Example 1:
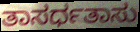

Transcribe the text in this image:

ತಾಸರ್ಧತಾಸು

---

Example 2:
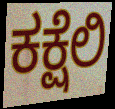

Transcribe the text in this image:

ಕಕ್ಷೆಲಿ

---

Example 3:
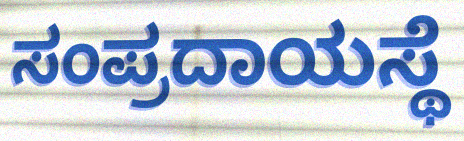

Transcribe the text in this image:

ಸಂಪ್ರದಾಯಸ್ಥೆ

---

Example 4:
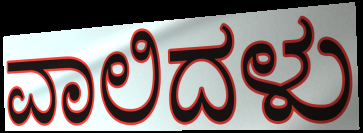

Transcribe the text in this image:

ವಾಲಿದಳು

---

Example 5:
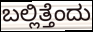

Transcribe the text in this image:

ಬಲ್ಲಿತ್ತೆಂದು